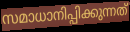
സമാധാനിപ്പിക്കുന്നത്